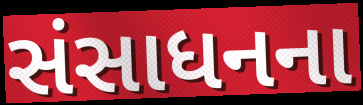
સંસાધનના